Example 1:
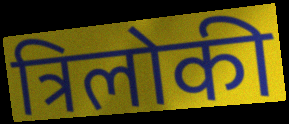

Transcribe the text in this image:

त्रिलोकी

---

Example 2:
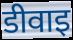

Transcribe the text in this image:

डीवाइ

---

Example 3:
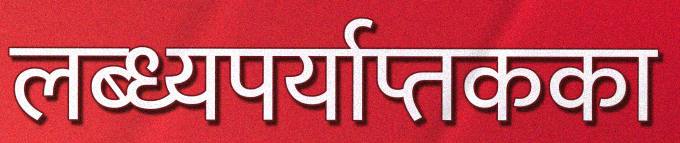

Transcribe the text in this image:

लब्ध्यपर्याप्तकका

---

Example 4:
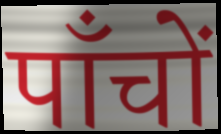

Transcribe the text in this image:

पाँचों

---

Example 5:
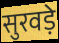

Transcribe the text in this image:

सुरवड़े